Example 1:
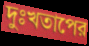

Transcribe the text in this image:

দুঃখতাপের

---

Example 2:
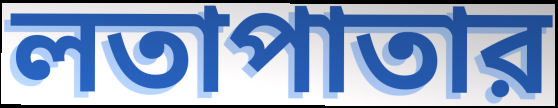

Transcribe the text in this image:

লতাপাতার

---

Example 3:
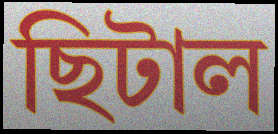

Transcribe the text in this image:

ছিটাল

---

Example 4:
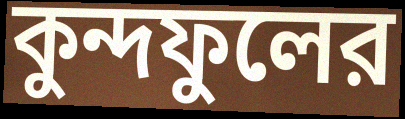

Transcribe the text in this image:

কুন্দফুলের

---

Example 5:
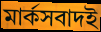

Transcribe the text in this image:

মার্কসবাদই